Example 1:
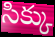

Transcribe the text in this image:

సిక్కు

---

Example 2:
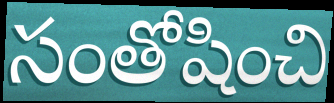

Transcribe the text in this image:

సంతోషించి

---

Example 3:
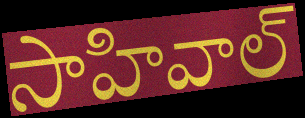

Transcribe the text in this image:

సాహివాల్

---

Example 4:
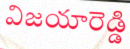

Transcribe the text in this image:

విజయారెడ్డి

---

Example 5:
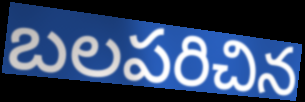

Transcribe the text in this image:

బలపరిచిన